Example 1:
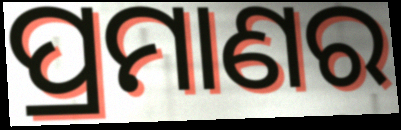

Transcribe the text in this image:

ପ୍ରମାଣର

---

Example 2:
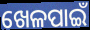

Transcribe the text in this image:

ଖେଳପାଇଁ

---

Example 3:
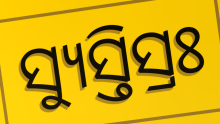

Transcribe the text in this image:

ସ୍ୟୁସ୍ତିସ୍ରଃ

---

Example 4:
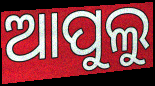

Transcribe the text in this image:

ଆପୁଲୁ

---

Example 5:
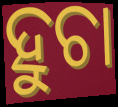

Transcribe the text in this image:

ହୁଚା